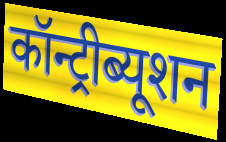
कॉन्ट्रीब्यूशन